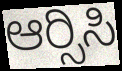
ಆರ್‍ಸಿಸಿ